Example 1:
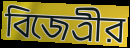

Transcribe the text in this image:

বিজেত্রীর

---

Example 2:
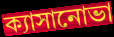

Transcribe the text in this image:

ক্যাসানোভা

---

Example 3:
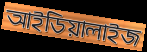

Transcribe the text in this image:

আইডিয়ালাইজ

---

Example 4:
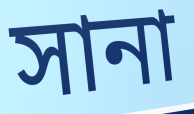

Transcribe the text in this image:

সানা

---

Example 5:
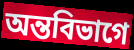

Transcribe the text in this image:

অন্তবিভাগে